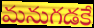
మనుగడకే